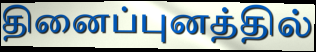
தினைப்புனத்தில்